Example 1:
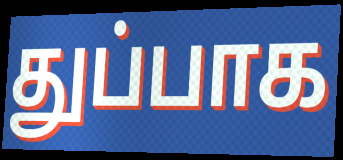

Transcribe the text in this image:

துப்பாக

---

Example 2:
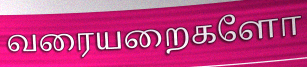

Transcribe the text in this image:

வரையறைகளோ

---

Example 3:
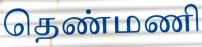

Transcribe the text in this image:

தெண்மணி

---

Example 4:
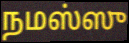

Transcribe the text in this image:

நமஸ்ஸு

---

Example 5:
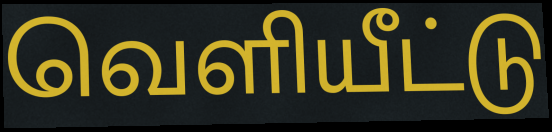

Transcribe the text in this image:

வெளியீட்டு